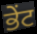
ਭੇਂਟ